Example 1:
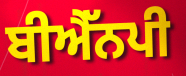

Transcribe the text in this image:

ਬੀਐੱਨਪੀ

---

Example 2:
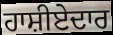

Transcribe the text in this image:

ਹਾਸ਼ੀਏਦਾਰ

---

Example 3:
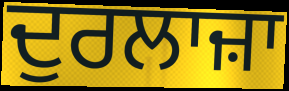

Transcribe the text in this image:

ਦੁਰਲਾਜ਼ਾ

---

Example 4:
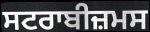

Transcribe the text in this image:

ਸਟਰਾਬੀਜ਼ਮਸ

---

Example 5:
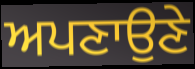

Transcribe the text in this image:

ਅਪਣਾਉਣੇ